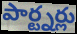
పార్ట్నర్లు